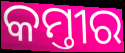
କମ୍ତୀର